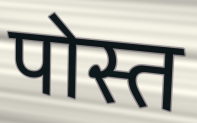
पोस्त